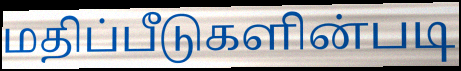
மதிப்பீடுகளின்படி